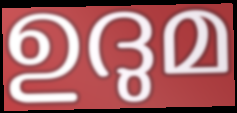
ഉദുമ